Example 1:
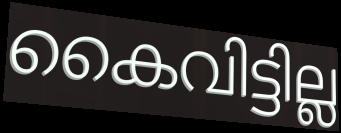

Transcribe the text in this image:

കൈവിട്ടില്ല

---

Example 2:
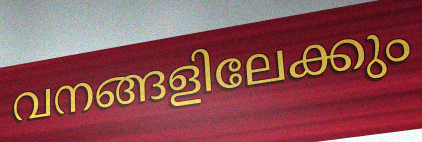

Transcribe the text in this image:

വനങ്ങളിലേക്കും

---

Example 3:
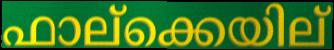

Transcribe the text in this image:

ഫാല്ക്കെയില്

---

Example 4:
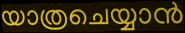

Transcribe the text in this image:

യാത്രചെയ്യാൻ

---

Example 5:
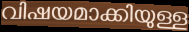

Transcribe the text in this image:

വിഷയമാക്കിയുള്ള